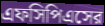
এফসিপিএসের